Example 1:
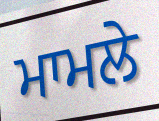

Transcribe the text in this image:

ਮਾਮਲੇ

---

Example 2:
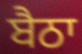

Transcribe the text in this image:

ਬੈਠਾ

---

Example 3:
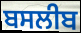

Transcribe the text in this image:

ਬਸਲੀਬ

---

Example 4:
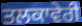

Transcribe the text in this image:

ਤਲਕਾਵੇਰੀ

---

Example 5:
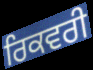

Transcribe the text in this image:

ਰਿਕਵਰੀ